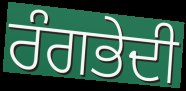
ਰੰਗਭੇਦੀ